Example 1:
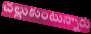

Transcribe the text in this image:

చల్లుకుంటున్నారు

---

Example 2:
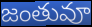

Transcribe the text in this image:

జంతువూ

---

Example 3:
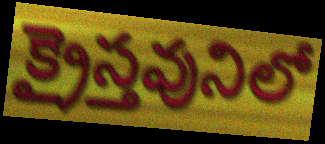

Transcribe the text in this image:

క్రైస్తవునిలో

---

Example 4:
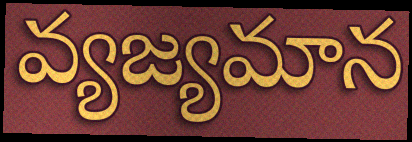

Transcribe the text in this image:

వ్యజ్యమాన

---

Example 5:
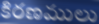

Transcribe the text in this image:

కిరణములు